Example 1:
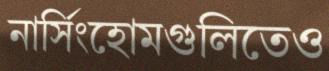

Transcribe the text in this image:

নার্সিংহোমগুলিতেও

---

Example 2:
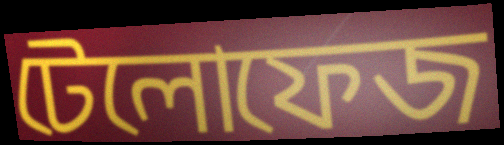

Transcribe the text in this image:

টেলোফেজ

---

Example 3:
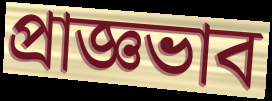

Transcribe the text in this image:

প্রাজ্ঞভাব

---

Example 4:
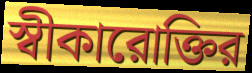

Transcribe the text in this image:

স্বীকারোক্তির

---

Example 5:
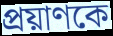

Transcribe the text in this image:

প্রয়াণকে